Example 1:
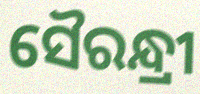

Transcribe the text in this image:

ସୈରନ୍ଧ୍ରୀ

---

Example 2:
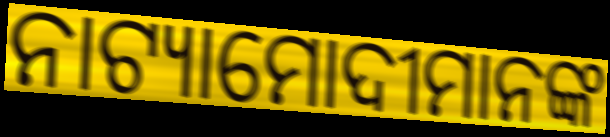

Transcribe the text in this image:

ନାଟ୍ୟାମୋଦୀମାନଙ୍କ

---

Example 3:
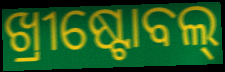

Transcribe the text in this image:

ଖ୍ରୀଷ୍ଟୋବଲ୍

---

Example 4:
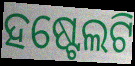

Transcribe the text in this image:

ହଷ୍ଟେଲଟି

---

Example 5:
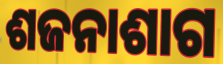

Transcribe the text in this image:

ଶଜନାଶାଗ